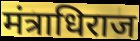
मंत्राधिराज